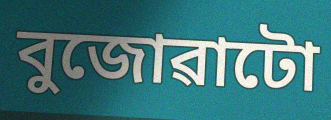
বুজোৱাটো